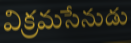
విక్రమసేనుడు